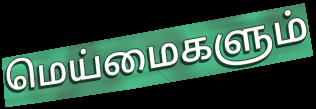
மெய்மைகளும்